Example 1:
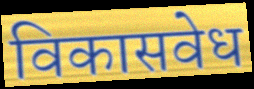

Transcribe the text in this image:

विकासवेध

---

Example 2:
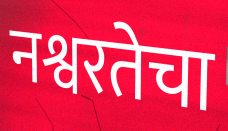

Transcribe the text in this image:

नश्वरतेचा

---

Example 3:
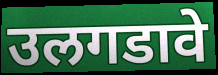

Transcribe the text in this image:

उलगडावे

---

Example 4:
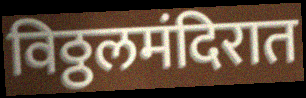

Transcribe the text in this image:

विठ्ठलमंदिरात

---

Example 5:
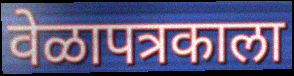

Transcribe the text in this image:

वेळापत्रकाला